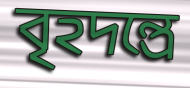
বৃহদন্ত্রে